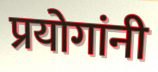
प्रयोगांनी